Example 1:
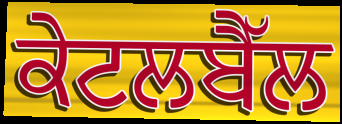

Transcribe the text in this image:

ਕੇਟਲਬੈੱਲ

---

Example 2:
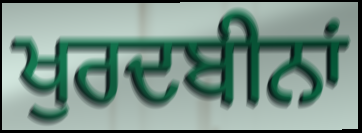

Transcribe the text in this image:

ਖੁਰਦਬੀਨਾਂ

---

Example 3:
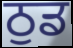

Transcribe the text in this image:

ਠੁਡ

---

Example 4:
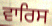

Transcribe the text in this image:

ਵਾਰਿਸ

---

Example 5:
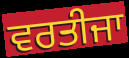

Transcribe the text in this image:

ਵਰਤੀਜਾ